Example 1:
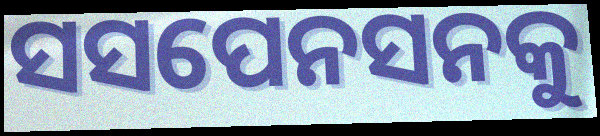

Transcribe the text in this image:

ସସପେନସନକୁ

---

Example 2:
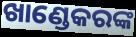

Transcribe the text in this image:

ଖାଣ୍ଡେକରଙ୍କ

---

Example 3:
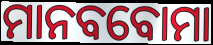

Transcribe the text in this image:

ମାନବବୋମା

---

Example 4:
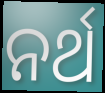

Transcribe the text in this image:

ନର୍ଥ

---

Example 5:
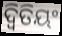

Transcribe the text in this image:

ଦ୍ୱିତିୟଂ